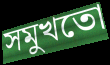
সমুখতো